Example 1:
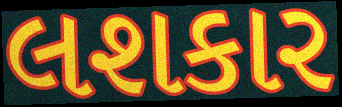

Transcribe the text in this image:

લશકાર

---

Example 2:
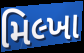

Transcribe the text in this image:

મિલ્ખા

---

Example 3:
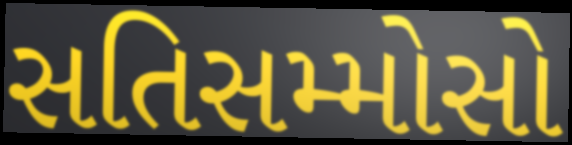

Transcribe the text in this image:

સતિસમ્મોસો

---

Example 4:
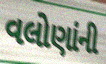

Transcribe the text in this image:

વલોણાંની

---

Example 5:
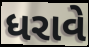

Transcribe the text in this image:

ધરાવે